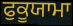
ਫੁਕੂਯਾਮਾ